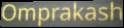
Omprakash